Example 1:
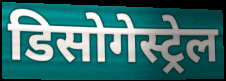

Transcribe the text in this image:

डिसोगेस्ट्रेल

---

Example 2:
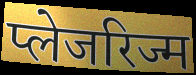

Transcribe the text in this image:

प्लेजरिज्म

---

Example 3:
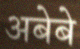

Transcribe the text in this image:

अबेबे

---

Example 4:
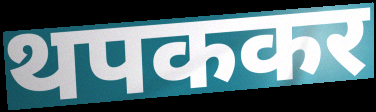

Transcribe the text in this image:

थपककर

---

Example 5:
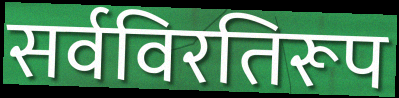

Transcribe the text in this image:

सर्वविरतिरूप